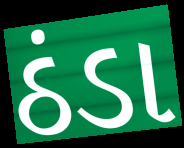
ઠંડા